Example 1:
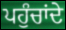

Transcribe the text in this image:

ਪਹੁੰਚਾਂਦੇ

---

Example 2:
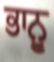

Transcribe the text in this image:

ਭਾਨੂ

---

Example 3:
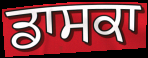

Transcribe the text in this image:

ਡਾਸਕਾ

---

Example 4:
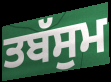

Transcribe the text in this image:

ਤਬੱਸੁਮ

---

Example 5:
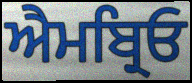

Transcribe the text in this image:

ਐਮਬ੍ਰਿਓ